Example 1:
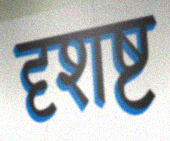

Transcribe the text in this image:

दृशष्ट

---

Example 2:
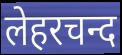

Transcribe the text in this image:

लेहरचन्द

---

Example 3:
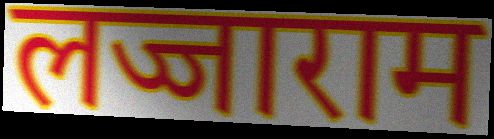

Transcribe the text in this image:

लज्जाराम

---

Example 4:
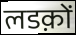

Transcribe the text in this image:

लडक़ों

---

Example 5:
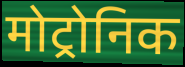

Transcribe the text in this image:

मोट्रोनिक